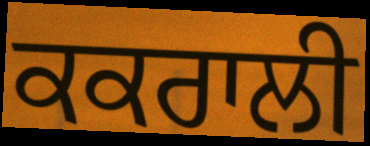
ਕਕਰਾਲੀ